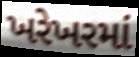
ખરેખરમાં